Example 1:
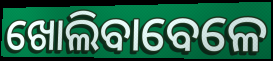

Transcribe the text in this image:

ଖୋଲିବାବେଳେ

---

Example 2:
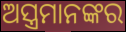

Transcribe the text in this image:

ଅସ୍ତ୍ରମାନଙ୍କର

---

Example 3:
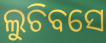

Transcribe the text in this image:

ଲୁଚିବସେ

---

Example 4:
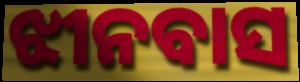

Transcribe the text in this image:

ଝୀନବାସ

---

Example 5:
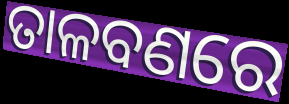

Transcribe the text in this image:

ତାଳବଣରେ